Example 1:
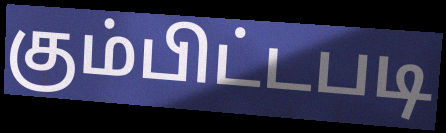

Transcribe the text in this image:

கும்பிட்டபடி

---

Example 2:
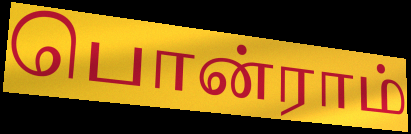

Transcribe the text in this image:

பொன்ராம்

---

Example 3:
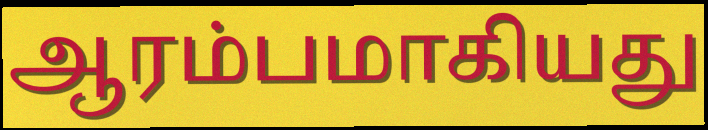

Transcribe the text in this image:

ஆரம்பமாகியது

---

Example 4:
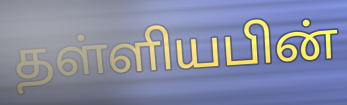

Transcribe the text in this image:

தள்ளியபின்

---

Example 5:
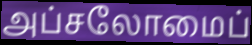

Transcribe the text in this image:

அப்சலோமைப்